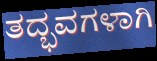
ತದ್ಭವಗಳಾಗಿ